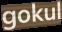
gokul